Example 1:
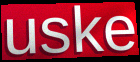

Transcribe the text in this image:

uske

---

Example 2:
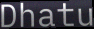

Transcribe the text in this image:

Dhatu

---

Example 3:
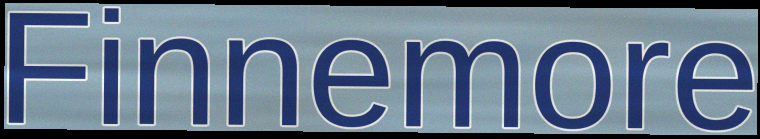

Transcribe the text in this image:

Finnemore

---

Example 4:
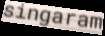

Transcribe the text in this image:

singaram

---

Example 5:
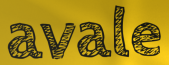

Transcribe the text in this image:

avale